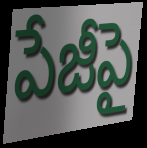
పేజీపై